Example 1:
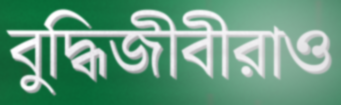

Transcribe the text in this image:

বুদ্ধিজীবীরাও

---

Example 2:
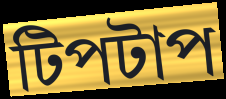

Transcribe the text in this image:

টিপটাপ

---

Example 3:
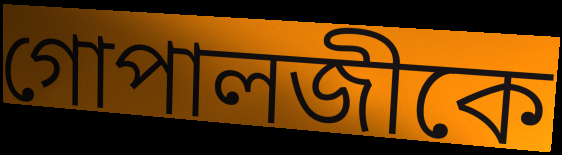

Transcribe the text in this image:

গোপালজীকে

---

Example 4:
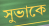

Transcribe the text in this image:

সুভাকে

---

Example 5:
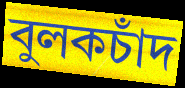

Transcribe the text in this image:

বুলকচাঁদ